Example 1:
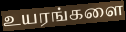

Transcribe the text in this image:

உயரங்களை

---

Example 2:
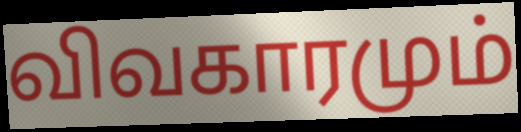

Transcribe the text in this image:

விவகாரமும்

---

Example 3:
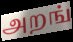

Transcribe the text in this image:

அறங்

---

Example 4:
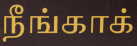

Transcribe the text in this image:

நீங்காக்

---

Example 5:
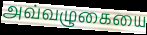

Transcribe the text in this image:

அவ்வழுகையை